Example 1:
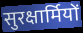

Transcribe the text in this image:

सुरक्षार्मियों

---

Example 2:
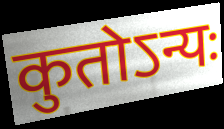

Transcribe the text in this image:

कुतोऽन्यः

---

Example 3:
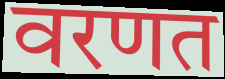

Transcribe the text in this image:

वरणत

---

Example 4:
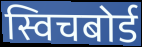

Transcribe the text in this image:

स्विचबोर्ड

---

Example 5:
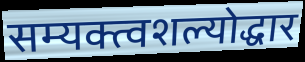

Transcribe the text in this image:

सम्यक्त्वशल्योद्धार